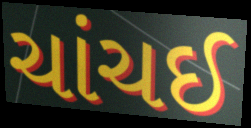
ચાંચઈ